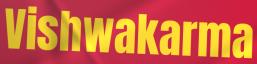
Vishwakarma